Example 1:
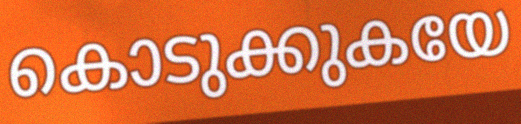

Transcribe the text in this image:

കൊടുക്കുകയേ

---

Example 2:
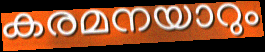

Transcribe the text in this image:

കരമനയാറും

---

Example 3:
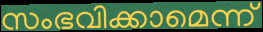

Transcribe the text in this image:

സംഭവിക്കാമെന്ന്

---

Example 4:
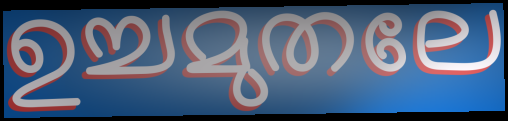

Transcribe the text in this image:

ഉച്ചമുതലേ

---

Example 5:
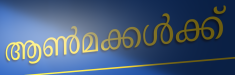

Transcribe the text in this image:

ആൺമക്കൾക്ക്